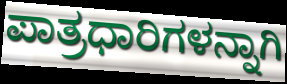
ಪಾತ್ರಧಾರಿಗಳನ್ನಾಗಿ